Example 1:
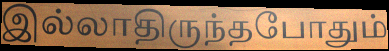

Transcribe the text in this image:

இல்லாதிருந்தபோதும்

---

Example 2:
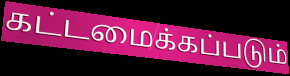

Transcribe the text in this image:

கட்டமைக்கப்படும்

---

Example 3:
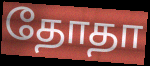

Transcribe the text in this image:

தோதா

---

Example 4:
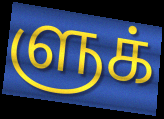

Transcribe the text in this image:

ளுக்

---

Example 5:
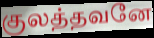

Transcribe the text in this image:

குலத்தவனே